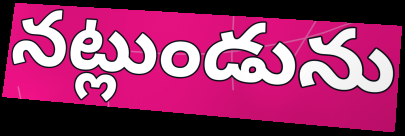
నట్లుండును